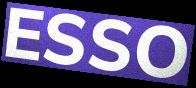
ESSO